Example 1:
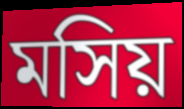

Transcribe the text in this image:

মসিয়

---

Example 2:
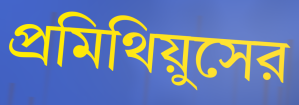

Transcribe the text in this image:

প্রমিথিয়ুসের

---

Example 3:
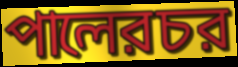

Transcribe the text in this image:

পালেরচর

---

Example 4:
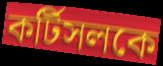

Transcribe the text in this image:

কর্টিসলকে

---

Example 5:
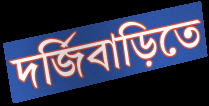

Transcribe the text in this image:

দর্জিবাড়িতে